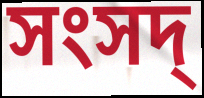
সংসদ্